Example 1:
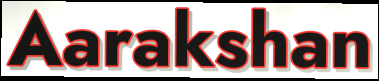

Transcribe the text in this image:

Aarakshan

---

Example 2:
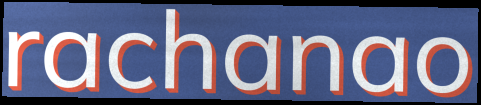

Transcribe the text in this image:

rachanao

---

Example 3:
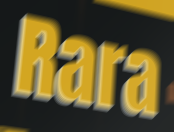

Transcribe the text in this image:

Rara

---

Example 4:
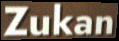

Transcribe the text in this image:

Zukan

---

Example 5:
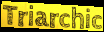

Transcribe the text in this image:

Triarchic